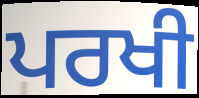
ਪਰਖੀ